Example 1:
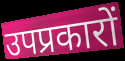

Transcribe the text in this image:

उपप्रकारों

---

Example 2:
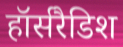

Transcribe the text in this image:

हॉर्सरैडिश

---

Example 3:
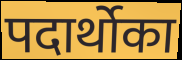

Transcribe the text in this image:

पदार्थोका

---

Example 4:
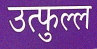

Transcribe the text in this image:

उत्फुल्ल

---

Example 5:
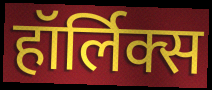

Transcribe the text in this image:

हॉर्लिक्‍स